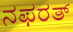
ನಫರತ್